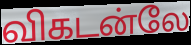
விகடன்லே